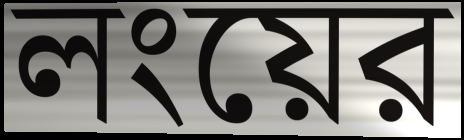
লংয়ের